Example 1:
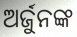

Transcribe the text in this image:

ଅର୍ଜୁନଙ୍କ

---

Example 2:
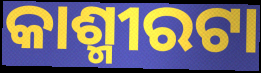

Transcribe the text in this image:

କାଶ୍ମୀରଟା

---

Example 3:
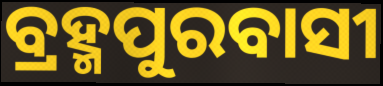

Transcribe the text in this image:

ବ୍ରହ୍ମପୁରବାସୀ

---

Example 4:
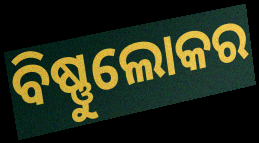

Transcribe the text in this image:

ବିଷ୍ଣୁଲୋକର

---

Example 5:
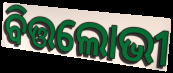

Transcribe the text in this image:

ବିତ୍ତଲୋଭୀ